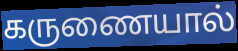
கருணையால்